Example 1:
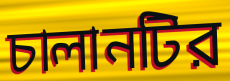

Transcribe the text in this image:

চালানটির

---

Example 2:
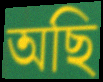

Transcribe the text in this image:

অছি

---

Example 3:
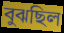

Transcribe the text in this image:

বুঝছিল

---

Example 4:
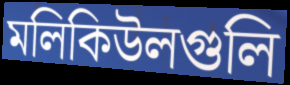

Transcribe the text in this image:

মলিকিউলগুলি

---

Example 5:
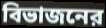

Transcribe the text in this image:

বিভাজনের